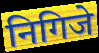
निगिजे